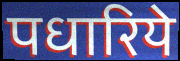
पधारिये